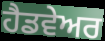
ਹੈਡਵੇਅਰ